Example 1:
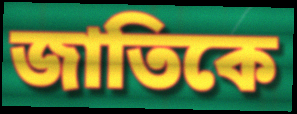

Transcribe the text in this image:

জাতিকে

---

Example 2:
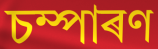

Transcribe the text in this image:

চম্পাৰণ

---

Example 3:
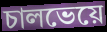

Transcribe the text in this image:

চালভেয়ে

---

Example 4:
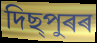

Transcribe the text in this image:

দিছ্পুৰৰ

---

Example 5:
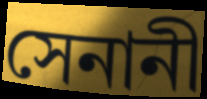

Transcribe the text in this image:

সেনানী